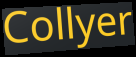
Collyer